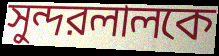
সুন্দরলালকে